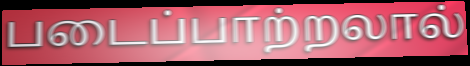
படைப்பாற்றலால்